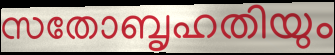
സതോബൃഹതിയും